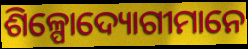
ଶିଳ୍ପୋଦ୍ୟୋଗୀମାନେ